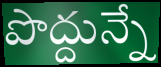
పొద్దున్నే